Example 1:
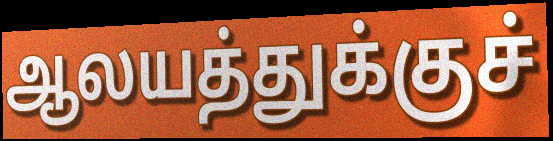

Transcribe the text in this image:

ஆலயத்துக்குச்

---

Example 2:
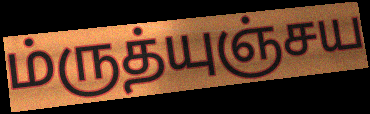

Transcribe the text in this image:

ம்ருத்யுஞ்சய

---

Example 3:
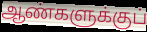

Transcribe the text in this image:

ஆண்களுக்குப்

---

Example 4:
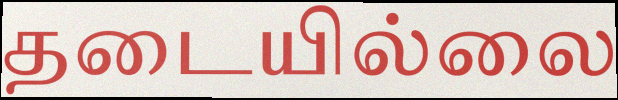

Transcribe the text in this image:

தடையில்லை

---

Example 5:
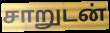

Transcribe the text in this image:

சாறுடன்